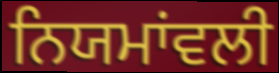
ਨਿਯਮਾਂਵਲੀ